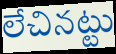
లేచినట్టు